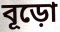
বূড়ো